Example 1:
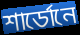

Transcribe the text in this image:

শার্ডোনে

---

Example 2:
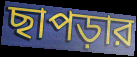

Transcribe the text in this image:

ছাপড়ার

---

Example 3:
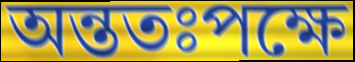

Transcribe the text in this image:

অন্ততঃপক্ষে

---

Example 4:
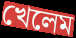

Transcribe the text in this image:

খেলেম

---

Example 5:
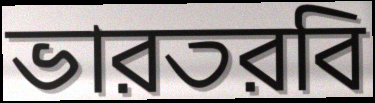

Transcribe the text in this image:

ভারতরবি